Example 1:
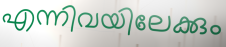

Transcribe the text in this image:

എന്നിവയിലേക്കും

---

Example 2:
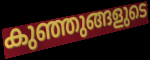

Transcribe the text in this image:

കുഞ്ഞുങ്ങളുടെ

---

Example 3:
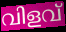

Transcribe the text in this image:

വിളവ്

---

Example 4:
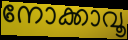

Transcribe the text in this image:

നോക്കാവൂ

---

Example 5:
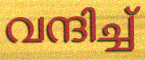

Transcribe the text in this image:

വന്ദിച്ച്